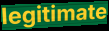
legitimate